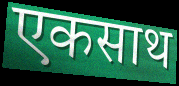
एकसाथ